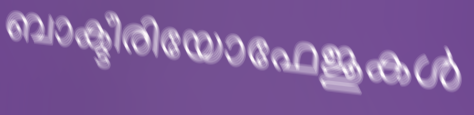
ബാക്ടീരിയോഫേജുകൾ